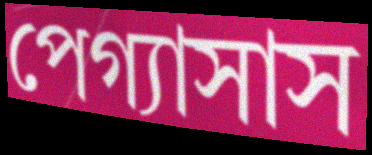
পেগ্যাসাস